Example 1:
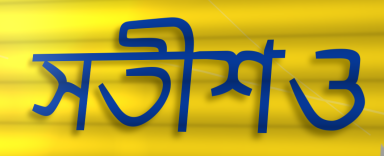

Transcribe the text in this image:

সতীশও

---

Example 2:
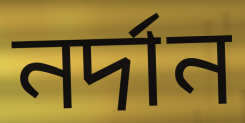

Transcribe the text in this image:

নর্দান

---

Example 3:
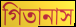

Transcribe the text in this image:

গিতানাস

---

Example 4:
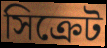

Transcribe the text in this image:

সিক্রেট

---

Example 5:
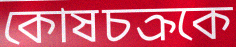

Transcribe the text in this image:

কোষচক্রকে